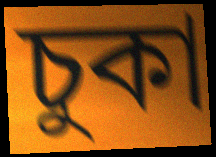
চুকা